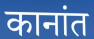
कानांत